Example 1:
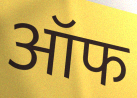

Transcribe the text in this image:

ऑफ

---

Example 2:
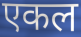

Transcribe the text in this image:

एकल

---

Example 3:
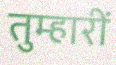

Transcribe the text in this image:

तुम्हारीं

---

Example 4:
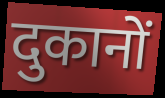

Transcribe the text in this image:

दुकानों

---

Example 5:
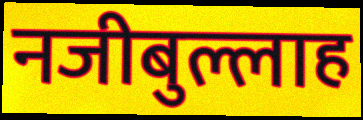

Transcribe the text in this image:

नजीबुल्लाह